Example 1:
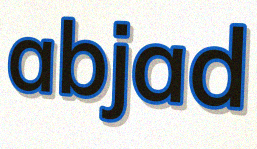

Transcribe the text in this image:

abjad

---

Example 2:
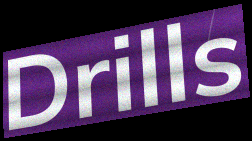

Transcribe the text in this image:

Drills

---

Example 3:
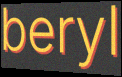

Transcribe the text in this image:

beryl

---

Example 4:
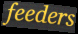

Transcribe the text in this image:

feeders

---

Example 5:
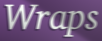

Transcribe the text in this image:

Wraps